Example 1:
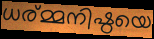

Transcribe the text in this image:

ധര്മ്മനിഷ്ഠയെ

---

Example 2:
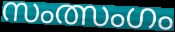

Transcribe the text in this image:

സംത്സംഗം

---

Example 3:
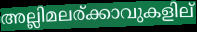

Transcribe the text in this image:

അല്ലിമലര്ക്കാവുകളില്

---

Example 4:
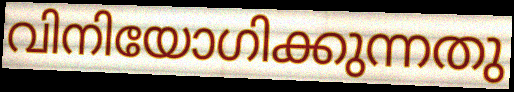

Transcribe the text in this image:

വിനിയോഗിക്കുന്നതു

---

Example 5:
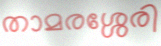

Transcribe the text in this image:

താമരശ്ശേരി